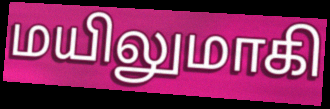
மயிலுமாகி